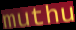
muthu